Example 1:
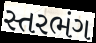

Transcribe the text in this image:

સ્તરભંગ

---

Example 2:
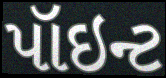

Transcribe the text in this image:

પૉઇન્ટ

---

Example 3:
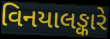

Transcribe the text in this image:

વિનયાલઙ્કારે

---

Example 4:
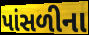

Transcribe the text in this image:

પાંસળીના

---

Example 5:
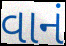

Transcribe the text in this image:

વાનં